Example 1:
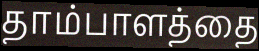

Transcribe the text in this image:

தாம்பாளத்தை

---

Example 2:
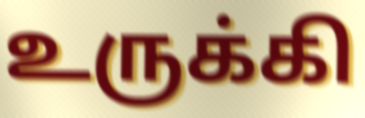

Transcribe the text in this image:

உருக்கி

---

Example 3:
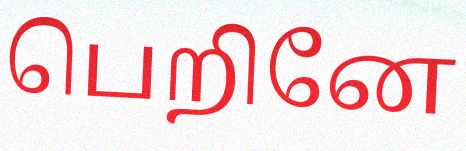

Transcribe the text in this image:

பெறினே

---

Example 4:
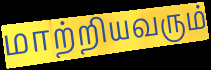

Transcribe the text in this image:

மாற்றியவரும்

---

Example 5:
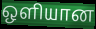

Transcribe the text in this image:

ஒளியான